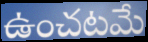
ఉంచటమే